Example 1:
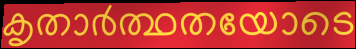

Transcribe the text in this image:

കൃതാർത്ഥതയോടെ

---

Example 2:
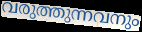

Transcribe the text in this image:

വരുത്തുന്നവനും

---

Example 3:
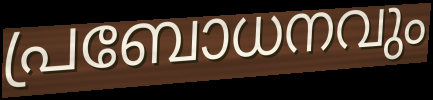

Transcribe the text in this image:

പ്രബോധനവും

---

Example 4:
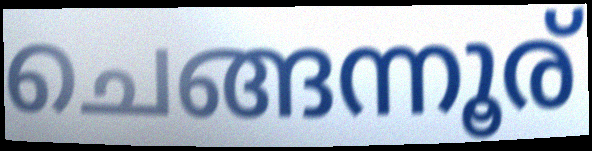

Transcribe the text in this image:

ചെങ്ങന്നൂര്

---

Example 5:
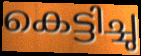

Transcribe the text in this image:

കെട്ടിച്ചു